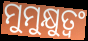
ମୁମୁକ୍ଷୁତ୍ୱଂ